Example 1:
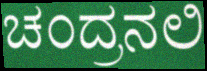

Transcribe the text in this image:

ಚಂದ್ರನಲಿ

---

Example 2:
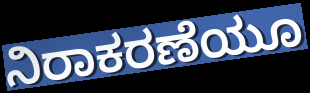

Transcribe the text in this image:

ನಿರಾಕರಣೆಯೂ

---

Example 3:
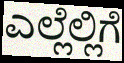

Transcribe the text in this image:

ಎಲ್ಲೆಲ್ಲಿಗೆ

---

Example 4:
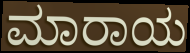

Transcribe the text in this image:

ಮಾರಾಯ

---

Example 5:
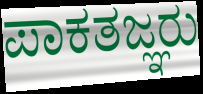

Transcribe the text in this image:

ಪಾಕತಜ್ಞರು